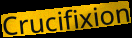
Crucifixion